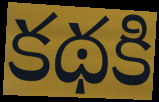
కథకి